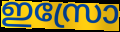
ഇസ്രോ